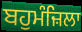
ਬਹੁਮੰਜ਼ਿਲਾ